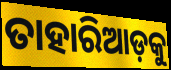
ତାହାରିଆଡ଼କୁ